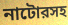
নাটোরসহ